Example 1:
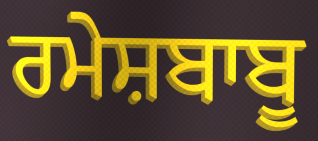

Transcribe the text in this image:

ਰਮੇਸ਼ਬਾਬੂ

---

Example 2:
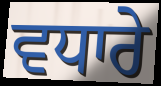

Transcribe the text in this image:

ਵਧਾਰੇ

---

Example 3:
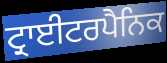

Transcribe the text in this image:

ਟ੍ਰਾਈਟਰਪੈਨਿਕ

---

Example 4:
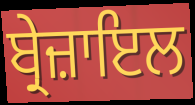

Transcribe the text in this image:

ਬ੍ਰੇਜ਼ਾਇਲ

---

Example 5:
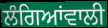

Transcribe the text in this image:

ਲੰਗਿਆਂਵਾਲੀ